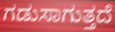
ಗಡುಸಾಗುತ್ತದೆ